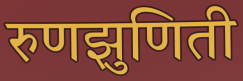
रुणझुणिती